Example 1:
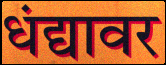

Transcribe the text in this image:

धंद्यावर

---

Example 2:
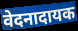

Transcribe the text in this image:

वेदनादायक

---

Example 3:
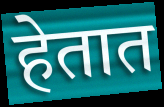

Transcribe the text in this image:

हेतात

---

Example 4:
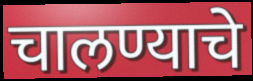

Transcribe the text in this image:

चालण्याचे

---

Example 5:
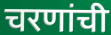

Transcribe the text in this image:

चरणांची